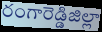
రంగారెడ్డిజిల్లా